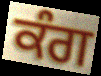
ਕੰਗ